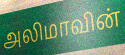
அலிமாவின்